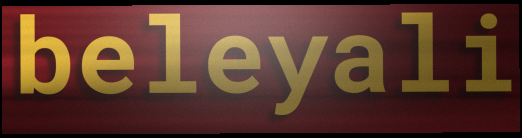
beleyali